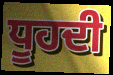
ਧੂਹਦੀ